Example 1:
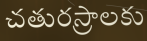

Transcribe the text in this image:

చతురస్రాలకు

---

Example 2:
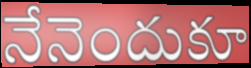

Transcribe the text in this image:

నేనెందుకూ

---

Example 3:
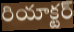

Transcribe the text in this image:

రియాక్టర్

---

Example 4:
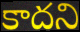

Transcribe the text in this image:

కాదని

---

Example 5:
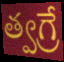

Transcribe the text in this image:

త్వగ్రే